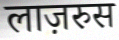
लाज़रुस